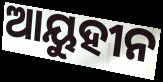
ଆୟୁହୀନ